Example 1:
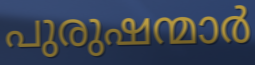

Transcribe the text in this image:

പുരുഷന്മാർ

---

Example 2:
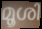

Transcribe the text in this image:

മൂശി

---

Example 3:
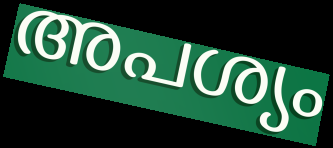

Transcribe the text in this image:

അപശ്യം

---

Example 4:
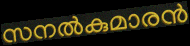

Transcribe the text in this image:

സനൽകുമാരൻ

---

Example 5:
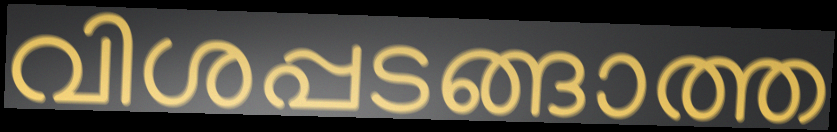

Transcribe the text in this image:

വിശപ്പടങ്ങാത്ത